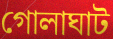
গোলাঘাট